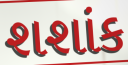
શશાંક